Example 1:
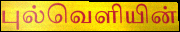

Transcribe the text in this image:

புல்வெளியின்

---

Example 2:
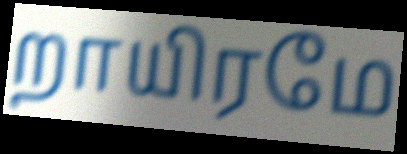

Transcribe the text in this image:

றாயிரமே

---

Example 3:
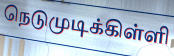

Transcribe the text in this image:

நெடுமுடிக்கிள்ளி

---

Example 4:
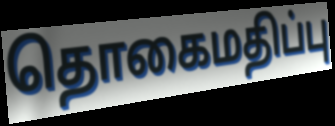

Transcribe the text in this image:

தொகைமதிப்பு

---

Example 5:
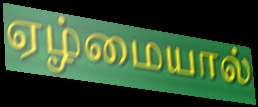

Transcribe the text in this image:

ஏழ்மையால்